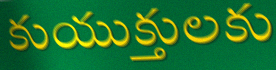
కుయుక్తులకు